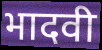
भादवी